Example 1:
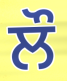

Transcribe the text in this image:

ਲੌ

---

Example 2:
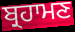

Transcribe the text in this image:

ਬ੍ਰਹਾਮਣ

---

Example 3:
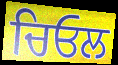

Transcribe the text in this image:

ਚਿਓਲ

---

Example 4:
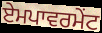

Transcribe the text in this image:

ਏਮਪਾਵਰਮੇਂਟ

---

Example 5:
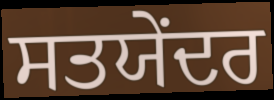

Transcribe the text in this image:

ਸਤਯੇਂਦਰ